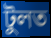
টুলত